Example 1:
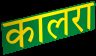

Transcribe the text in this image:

कालरा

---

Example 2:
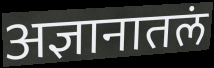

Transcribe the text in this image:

अज्ञानातलं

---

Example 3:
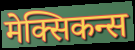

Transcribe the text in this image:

मेक्सिकन्स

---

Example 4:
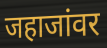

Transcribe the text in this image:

जहाजांवर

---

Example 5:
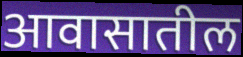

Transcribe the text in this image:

आवासातील